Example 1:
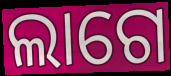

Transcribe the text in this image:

ଲାଗେ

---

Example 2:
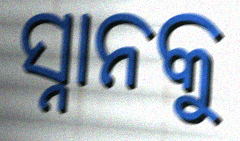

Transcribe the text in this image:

ସ୍ନାନକୁ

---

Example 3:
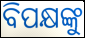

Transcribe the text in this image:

ବିପକ୍ଷଙ୍କୁ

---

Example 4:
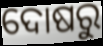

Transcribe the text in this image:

ଦୋଷରୁ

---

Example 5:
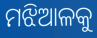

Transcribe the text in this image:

ମଝିଆଳକୁ